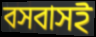
বসবাসই